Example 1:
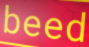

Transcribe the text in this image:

beed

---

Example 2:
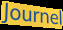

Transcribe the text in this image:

Journel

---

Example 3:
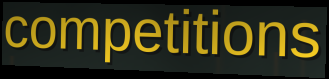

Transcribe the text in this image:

competitions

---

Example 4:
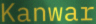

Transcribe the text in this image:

Kanwar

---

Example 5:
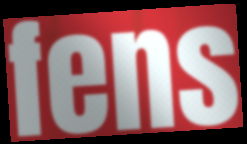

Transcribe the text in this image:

fens